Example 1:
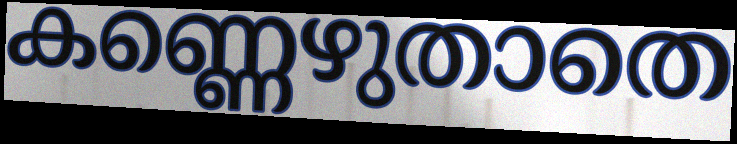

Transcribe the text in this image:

കണ്ണെഴുതാതെ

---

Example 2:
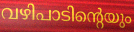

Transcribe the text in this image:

വഴിപാടിന്റെയും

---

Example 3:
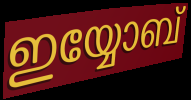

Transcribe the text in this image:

ഇയ്യോബ്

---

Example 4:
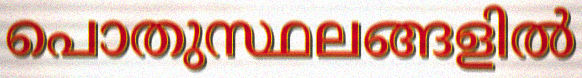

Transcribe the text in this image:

പൊതുസ്ഥലങ്ങളിൽ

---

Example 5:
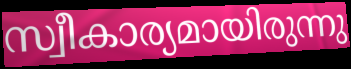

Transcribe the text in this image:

സ്വീകാര്യമായിരുന്നു